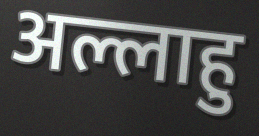
अल्लाहु